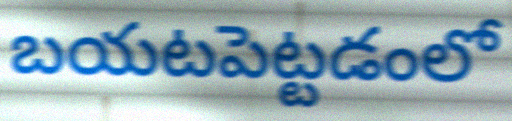
బయటపెట్టడంలో